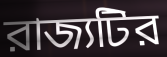
রাজ্যটির